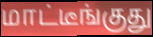
மாட்டீங்குது